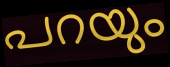
പറയും